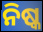
ନିଷ୍କ